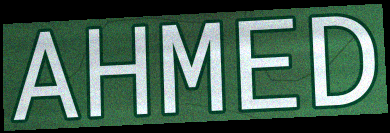
AHMED